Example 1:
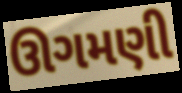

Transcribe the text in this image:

ઊગમણી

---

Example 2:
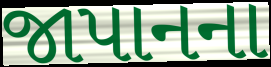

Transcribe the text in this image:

જાપાનના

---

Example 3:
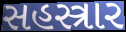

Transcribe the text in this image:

સહસ્ત્રાર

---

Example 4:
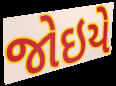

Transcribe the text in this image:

જોઇયે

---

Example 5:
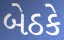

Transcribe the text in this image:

બેઠકે